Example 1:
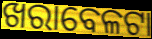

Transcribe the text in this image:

ଖରାବେଳଟା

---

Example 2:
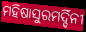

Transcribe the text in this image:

ମହିଷାସୁରମର୍ଦ୍ଦିନୀ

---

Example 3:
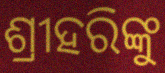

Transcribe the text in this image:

ଶ୍ରୀହରିଙ୍କୁ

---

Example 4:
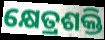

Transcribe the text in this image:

କ୍ଷେତ୍ରଶକ୍ତି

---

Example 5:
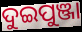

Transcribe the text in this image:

ଦୁଇପୁଞ୍ଜା